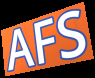
AFS